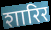
शारिर